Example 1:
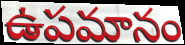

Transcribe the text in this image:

ఉపమానం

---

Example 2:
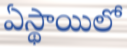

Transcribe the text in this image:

ఏస్థాయిలో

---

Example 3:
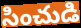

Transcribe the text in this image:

సించుడి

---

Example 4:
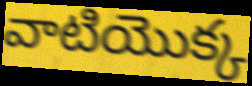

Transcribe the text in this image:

వాటియొక్క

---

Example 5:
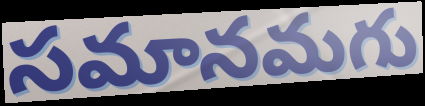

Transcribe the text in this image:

సమానమగు